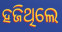
ହଜିଥିଲେ